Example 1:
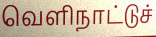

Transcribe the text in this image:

வெளிநாட்டுச்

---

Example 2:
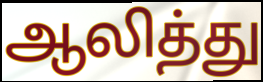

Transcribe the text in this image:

ஆலித்து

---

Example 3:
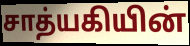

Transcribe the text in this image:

சாத்யகியின்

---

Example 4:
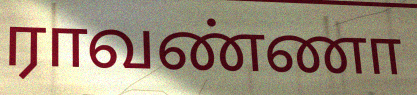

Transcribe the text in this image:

ராவண்ணா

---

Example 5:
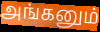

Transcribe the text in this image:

அங்கனும்